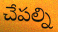
చేపల్ని